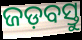
ଜଡ଼ବସ୍ତୁ